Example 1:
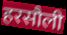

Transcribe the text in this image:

हरसौली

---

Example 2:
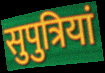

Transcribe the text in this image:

सुपुत्रियां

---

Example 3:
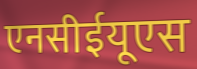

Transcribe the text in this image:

एनसीईयूएस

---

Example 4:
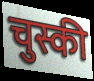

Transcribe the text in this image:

चुस्की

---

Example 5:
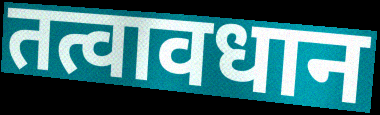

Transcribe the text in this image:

तत्वावधान